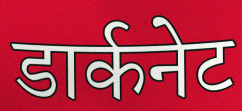
डार्कनेट